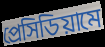
প্রেসিডিয়ামে